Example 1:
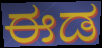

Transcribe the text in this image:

ಈಡ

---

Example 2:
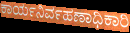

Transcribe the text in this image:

ಕಾರ್ಯನಿರ್ವಹಣಾಧಿಕಾರಿ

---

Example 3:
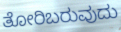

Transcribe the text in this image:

ತೋರಿಬರುವುದು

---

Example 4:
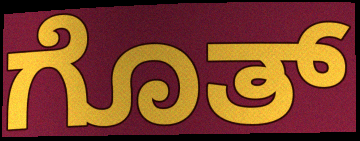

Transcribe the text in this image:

ಗೊತ್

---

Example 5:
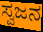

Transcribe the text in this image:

ಸ್ವಜನ